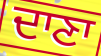
ਦਾਣਾ